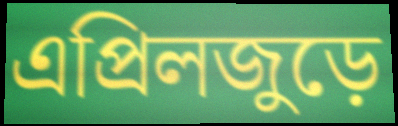
এপ্রিলজুড়ে